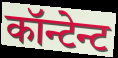
कॉन्टेन्ट